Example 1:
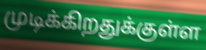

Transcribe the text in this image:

முடிக்கிறதுக்குள்ள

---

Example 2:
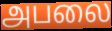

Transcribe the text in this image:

அபலை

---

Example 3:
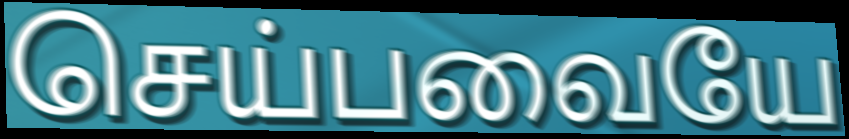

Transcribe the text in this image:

செய்பவையே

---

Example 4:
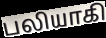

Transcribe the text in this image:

பலியாகி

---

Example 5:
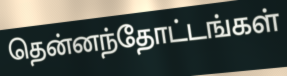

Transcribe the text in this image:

தென்னந்தோட்டங்கள்